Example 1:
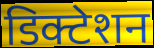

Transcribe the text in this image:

डिक्टेशन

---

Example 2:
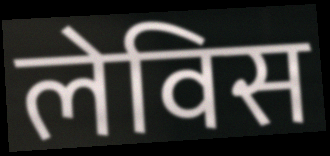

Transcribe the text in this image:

लेविस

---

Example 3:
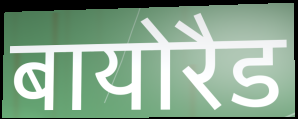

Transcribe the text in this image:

बायोरैड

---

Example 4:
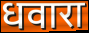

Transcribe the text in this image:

धवारा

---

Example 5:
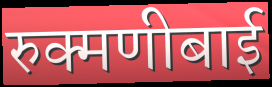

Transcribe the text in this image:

रुक्मणीबाई